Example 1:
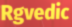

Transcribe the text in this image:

Rgvedic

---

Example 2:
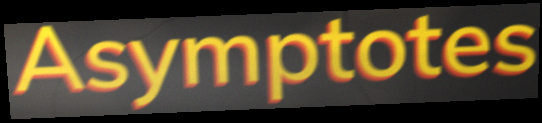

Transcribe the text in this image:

Asymptotes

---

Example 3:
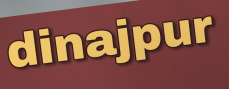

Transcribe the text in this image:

dinajpur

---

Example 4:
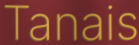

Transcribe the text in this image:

Tanais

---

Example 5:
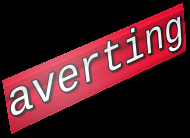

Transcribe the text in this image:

averting